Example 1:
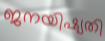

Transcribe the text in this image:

ജനയിഷ്യതി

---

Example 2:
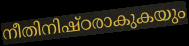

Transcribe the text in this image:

നീതിനിഷ്ഠരാകുകയും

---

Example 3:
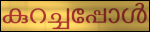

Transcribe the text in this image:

കുറച്ചപ്പോൾ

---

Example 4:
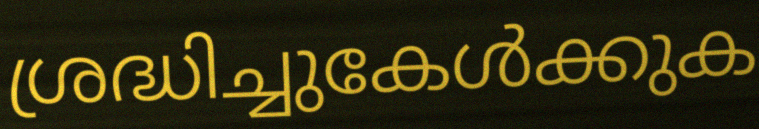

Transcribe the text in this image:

ശ്രദ്ധിച്ചുകേൾക്കുക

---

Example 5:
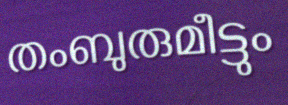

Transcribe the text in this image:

തംബുരുമീട്ടും